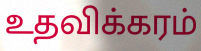
உதவிக்கரம்